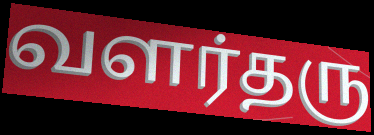
வளர்தரு